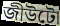
জীউটো